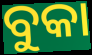
ବୁକା